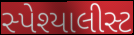
સ્પેશ્યાલીસ્ટ